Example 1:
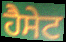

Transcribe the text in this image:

ਹੈਸੇਟ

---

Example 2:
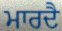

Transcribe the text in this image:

ਮਾਰਦੈ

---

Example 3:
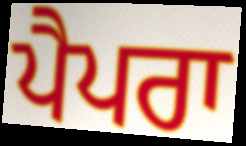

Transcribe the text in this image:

ਪੈਪਰਾ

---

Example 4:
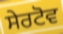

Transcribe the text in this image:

ਸੇਰਟੋਵ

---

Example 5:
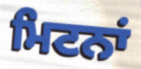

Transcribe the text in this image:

ਮਿਟਨਾਂ